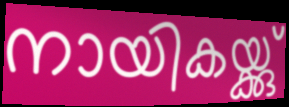
നായികയ്ക്കു്